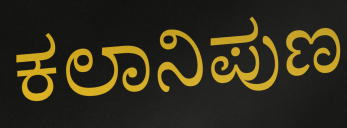
ಕಲಾನಿಪುಣ